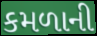
કમળાની